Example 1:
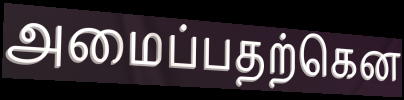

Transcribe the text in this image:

அமைப்பதற்கென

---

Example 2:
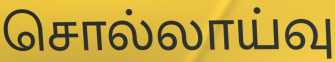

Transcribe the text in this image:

சொல்லாய்வு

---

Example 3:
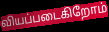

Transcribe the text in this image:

வியப்படைகிறோம்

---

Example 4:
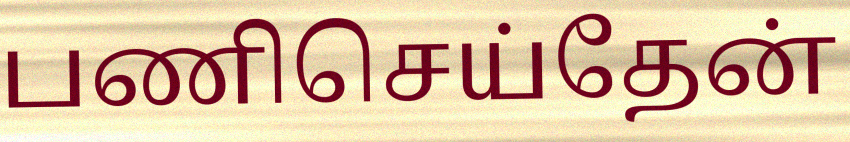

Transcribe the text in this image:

பணிசெய்தேன்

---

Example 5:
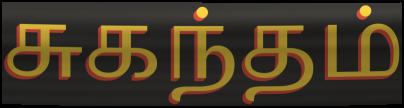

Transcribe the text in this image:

சுகந்தம்